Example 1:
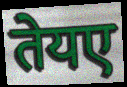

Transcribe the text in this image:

तेयए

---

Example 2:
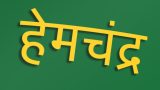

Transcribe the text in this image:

हेमचंद्र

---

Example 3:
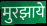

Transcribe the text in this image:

मुरझाये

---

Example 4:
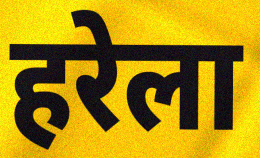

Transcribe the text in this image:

हरेला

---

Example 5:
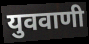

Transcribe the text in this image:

युववाणी